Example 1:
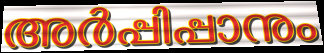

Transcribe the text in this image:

അർപ്പിപ്പാനും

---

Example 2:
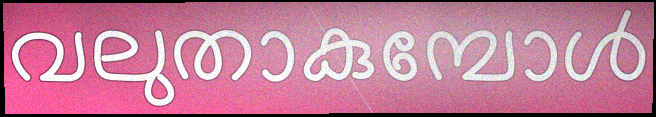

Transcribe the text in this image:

വലുതാകുമ്പോൾ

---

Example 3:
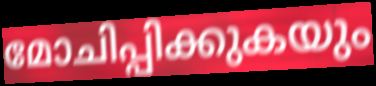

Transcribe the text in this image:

മോചിപ്പിക്കുകയും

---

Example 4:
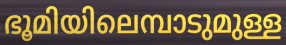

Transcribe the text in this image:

ഭൂമിയിലെമ്പാടുമുള്ള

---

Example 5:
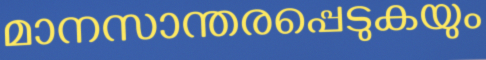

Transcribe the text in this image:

മാനസാന്തരപ്പെടുകയും